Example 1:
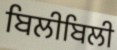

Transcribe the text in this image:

ਬਿਲੀਬਿਲੀ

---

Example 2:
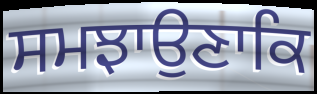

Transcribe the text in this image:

ਸਮਝਾਉਣਾਕਿ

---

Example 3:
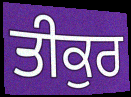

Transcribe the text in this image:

ਤੀਕੁਰ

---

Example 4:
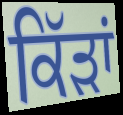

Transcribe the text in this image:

ਕਿੱੜਾਂ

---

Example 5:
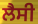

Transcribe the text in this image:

ਲੈਸੀ